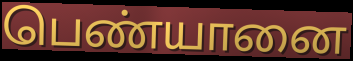
பெண்யானை